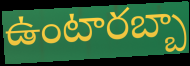
ఉంటారబ్బా